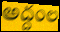
అద్దంల